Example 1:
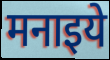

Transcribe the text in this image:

मनाइये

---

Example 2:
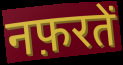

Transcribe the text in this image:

नफ़रतें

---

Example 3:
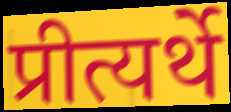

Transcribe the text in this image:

प्रीत्यर्थे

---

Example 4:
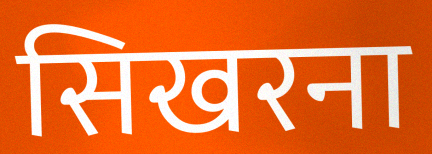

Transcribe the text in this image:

सिखरना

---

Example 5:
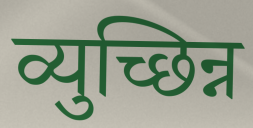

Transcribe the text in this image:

व्युच्छिन्न